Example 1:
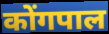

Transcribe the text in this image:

कोंगपाल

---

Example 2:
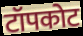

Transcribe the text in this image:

टॉपकोट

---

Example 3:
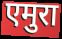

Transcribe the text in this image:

एमुरा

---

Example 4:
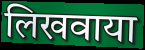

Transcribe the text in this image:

लिखवाया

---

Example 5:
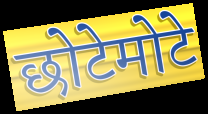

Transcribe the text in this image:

छोटेमोटे